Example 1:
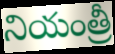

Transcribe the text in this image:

నియంత్రీ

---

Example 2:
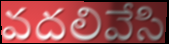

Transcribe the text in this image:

వదలివేసి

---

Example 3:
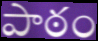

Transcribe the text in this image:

పాఠం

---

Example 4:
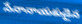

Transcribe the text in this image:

సేనానాయకుడైన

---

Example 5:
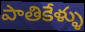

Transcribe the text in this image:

పాతికేళ్ళు